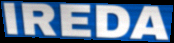
IREDA